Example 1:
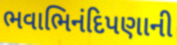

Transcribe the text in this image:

ભવાભિનંદિપણાની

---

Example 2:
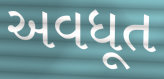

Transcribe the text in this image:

અવધૂત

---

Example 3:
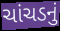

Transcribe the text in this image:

ચાંચડનું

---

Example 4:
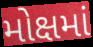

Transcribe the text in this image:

મોક્ષમાં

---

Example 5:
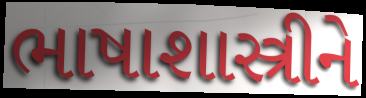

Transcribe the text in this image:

ભાષાશાસ્ત્રીને